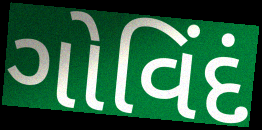
ગોવિંદં